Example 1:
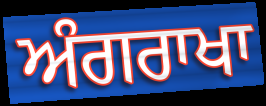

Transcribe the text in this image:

ਅੰਗਰਾਖਾ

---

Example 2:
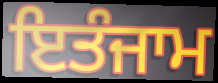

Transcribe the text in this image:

ਇਤੰਜਾਮ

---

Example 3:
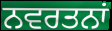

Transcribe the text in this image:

ਨਵਰਤਨਾਂ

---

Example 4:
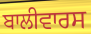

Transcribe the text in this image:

ਬਾਲੀਵਾਰਸ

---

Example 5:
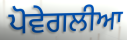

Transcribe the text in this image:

ਪੋਵੇਗਲੀਆ